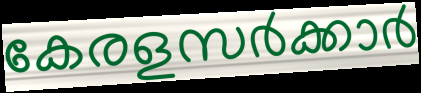
കേരളസർക്കാർ